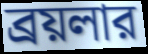
ব্রয়লার